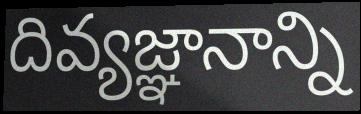
దివ్యజ్ఞానాన్ని